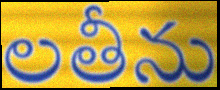
లతీను